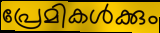
പ്രേമികൾക്കും